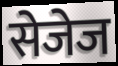
सेजेज